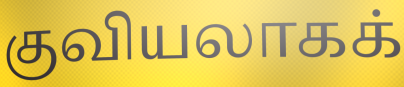
குவியலாகக்